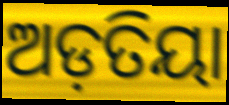
ଅଡ଼ତିୟା